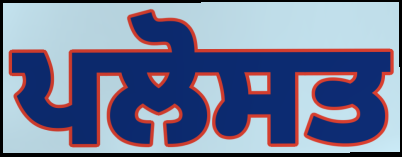
ਪਲੋਸਤ